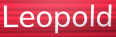
Leopold